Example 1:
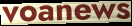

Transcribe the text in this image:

voanews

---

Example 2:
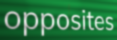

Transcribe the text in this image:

opposites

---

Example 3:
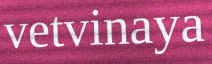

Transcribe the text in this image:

vetvinaya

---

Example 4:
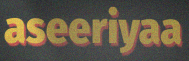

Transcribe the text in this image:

aseeriyaa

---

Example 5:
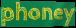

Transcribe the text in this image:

phoney